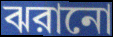
ঝরানো